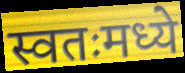
स्वतःमध्ये